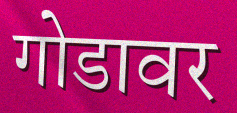
गोडावर